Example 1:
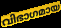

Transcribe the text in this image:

വിഭാഗമായ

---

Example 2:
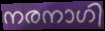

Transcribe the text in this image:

നരനാഗി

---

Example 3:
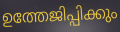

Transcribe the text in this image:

ഉത്തേജിപ്പിക്കും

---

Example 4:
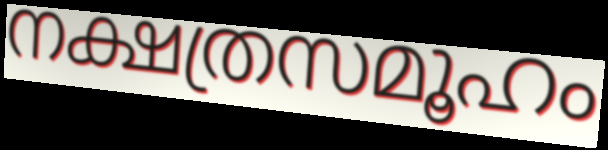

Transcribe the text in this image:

നക്ഷത്രസമൂഹം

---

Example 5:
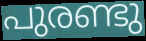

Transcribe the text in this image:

പുരണ്ടു